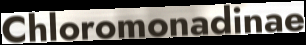
Chloromonadinae